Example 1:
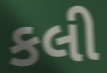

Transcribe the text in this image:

કલી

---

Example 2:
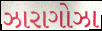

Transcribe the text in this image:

ઝારાગોઝા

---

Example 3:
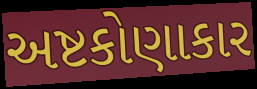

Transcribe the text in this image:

અષ્ટકોણાકાર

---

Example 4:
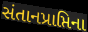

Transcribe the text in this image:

સંતાનપ્રાપ્તિના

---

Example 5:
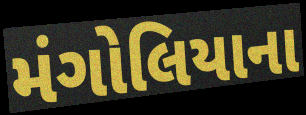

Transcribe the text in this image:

મંગોલિયાના